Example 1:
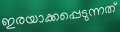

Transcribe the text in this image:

ഇരയാക്കപ്പെടുന്നത്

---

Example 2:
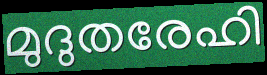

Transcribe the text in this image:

മുദുതരേഹി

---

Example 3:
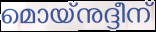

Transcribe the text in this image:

മൊയ്നുദ്ദീന്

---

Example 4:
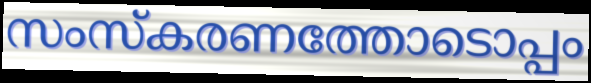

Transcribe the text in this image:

സംസ്കരണത്തോടൊപ്പം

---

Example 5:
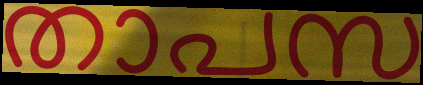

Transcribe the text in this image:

താപസ